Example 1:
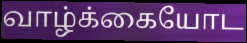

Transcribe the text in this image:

வாழ்க்கையோட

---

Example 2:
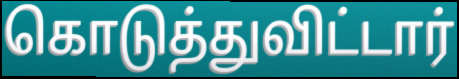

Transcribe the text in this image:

கொடுத்துவிட்டார்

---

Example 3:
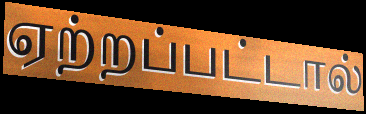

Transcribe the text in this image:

ஏற்றப்பட்டால்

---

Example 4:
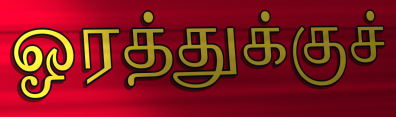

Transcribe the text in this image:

ஓரத்துக்குச்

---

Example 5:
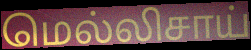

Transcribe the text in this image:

மெல்லிசாய்